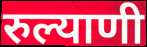
रुल्याणी